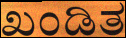
ಖಂಡಿತ